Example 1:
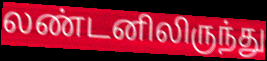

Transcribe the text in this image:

லண்டனிலிருந்து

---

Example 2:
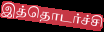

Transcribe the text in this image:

இத்தொடர்ச்சி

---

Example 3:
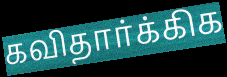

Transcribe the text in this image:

கவிதார்க்கிக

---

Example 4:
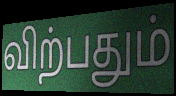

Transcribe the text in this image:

விற்பதும்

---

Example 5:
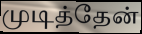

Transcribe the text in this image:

முடித்தேன்